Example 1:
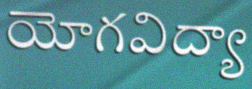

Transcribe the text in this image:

యోగవిద్యా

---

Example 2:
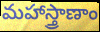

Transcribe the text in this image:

మహాస్త్రాణాం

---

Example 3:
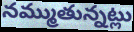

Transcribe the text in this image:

నమ్ముతున్నట్లు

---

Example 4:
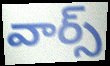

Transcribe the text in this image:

వార్స్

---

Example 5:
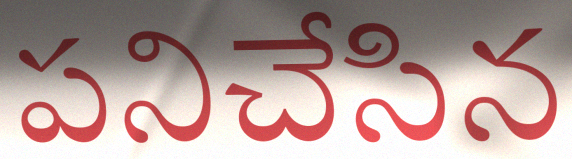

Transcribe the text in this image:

పనిచేసిన